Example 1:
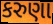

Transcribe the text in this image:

કરુણા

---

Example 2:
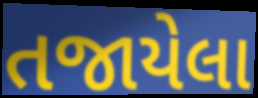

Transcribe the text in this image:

તજાયેલા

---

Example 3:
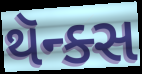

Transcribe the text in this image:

થૅન્ક્સ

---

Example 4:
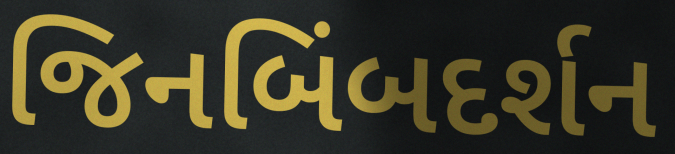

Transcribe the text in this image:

જિનબિંબદર્શન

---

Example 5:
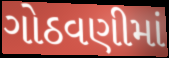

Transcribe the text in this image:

ગોઠવણીમાં